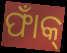
ଫାଁକ୍